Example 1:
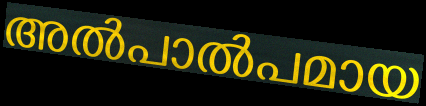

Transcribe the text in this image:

അൽപാൽപമായ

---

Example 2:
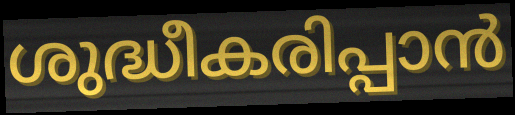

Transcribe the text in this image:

ശുദ്ധീകരിപ്പാൻ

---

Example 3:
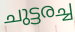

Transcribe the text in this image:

ചുട്ടരച്ച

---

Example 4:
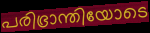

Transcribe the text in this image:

പരിഭ്രാന്തിയോടെ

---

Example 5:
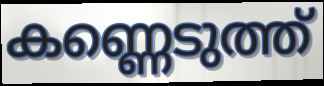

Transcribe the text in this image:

കണ്ണെടുത്ത്